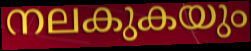
നലകുകയും